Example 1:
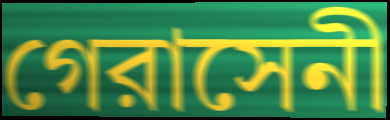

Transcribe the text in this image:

গেরাসেনী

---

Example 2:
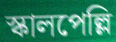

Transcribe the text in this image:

স্কালপেল্লি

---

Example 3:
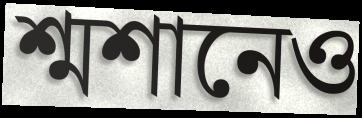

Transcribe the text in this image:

শ্মশানেও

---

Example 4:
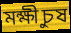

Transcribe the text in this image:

মক্ষীচুষ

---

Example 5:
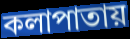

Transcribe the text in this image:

কলাপাতায়